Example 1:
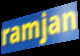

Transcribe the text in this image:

ramjan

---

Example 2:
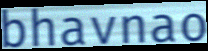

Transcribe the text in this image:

bhavnao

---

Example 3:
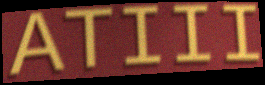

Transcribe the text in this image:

ATIII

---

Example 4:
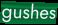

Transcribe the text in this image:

gushes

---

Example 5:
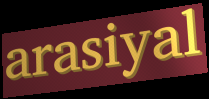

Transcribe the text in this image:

arasiyal